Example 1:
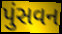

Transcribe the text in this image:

પુંસવન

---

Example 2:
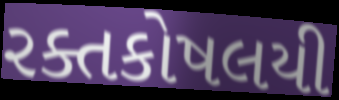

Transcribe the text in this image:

રક્તકોષલયી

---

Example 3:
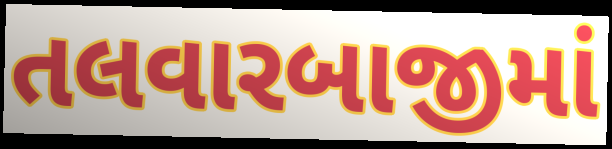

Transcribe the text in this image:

તલવારબાજીમાં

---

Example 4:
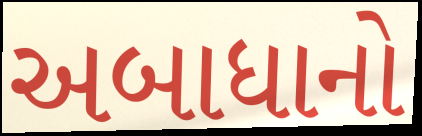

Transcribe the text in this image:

અબાધાનો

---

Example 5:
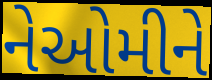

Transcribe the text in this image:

નેઓમીને